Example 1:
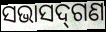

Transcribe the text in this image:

ସଭାସଦ୍‌ଗଣ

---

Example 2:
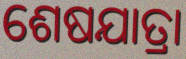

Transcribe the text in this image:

ଶେଷଯାତ୍ରା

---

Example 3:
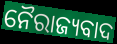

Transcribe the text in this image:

ନୈରାଜ୍ୟବାଦ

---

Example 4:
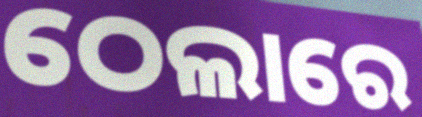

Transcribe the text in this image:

ଠେଲାରେ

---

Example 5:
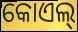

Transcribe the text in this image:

କୋଏଲ୍